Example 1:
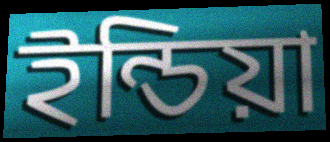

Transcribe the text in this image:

ইন্ডিয়া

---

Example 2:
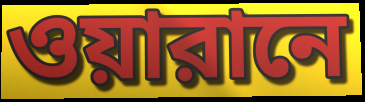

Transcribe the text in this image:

ওয়ারানে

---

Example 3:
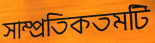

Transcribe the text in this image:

সাম্প্রতিকতমটি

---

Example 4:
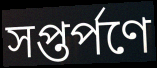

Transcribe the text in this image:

সপ্তর্পণে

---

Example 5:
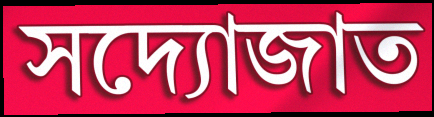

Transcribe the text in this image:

সদ্যোজাত